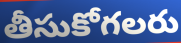
తీసుకోగలరు